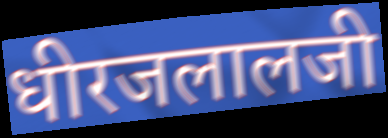
धीरजलालजी